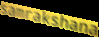
samrakshana